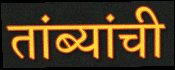
तांब्यांची